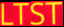
LTST